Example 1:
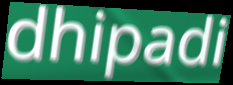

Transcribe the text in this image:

dhipadi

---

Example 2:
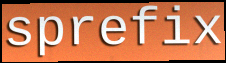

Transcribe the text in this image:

sprefix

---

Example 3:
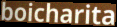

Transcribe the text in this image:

boicharita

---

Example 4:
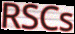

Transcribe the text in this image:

RSCs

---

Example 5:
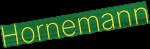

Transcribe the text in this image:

Hornemann